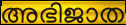
അഭിജാത